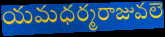
యమధర్మరాజువలె